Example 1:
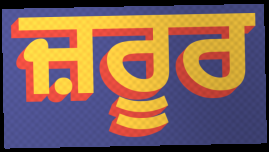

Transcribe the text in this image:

ਜ਼ਰੂਰ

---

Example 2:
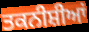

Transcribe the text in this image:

ਤਕਨੀਸ਼ੀਆਂ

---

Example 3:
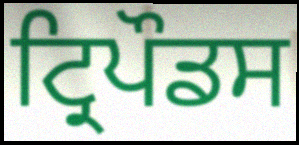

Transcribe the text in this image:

ਟ੍ਰਿਪੌਡਸ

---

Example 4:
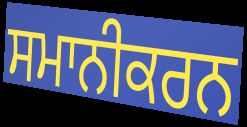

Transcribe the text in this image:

ਸਮਾਨੀਕਰਨ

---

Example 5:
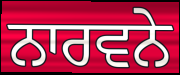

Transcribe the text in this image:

ਨਾਰਵਨੇ